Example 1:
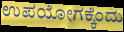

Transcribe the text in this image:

ಉಪಯೋಗಕ್ಕೆಂದು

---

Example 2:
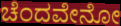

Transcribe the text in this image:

ಚೆಂದವೇನೋ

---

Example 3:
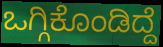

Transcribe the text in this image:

ಒಗ್ಗಿಕೊಂಡಿದ್ದೆ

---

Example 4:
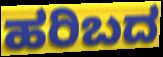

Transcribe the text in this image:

ಹರಿಬದ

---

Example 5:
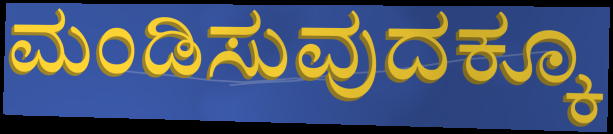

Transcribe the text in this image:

ಮಂಡಿಸುವುದಕ್ಕೂ